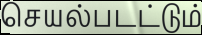
செயல்படட்டும்